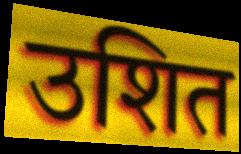
उशित